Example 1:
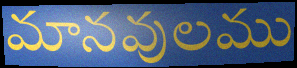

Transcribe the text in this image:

మానవులము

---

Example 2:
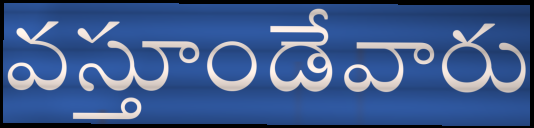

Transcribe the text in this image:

వస్తూండేవారు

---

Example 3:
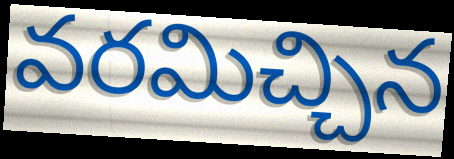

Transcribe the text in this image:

వరమిచ్చిన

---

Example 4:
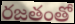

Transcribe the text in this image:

రజతంతో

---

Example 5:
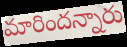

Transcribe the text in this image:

మారిందన్నారు